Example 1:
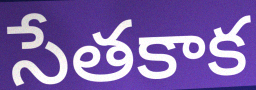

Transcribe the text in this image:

సేతకాక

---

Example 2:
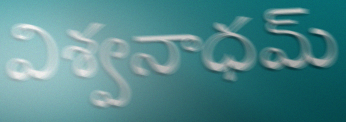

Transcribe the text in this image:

విశ్వనాధమ్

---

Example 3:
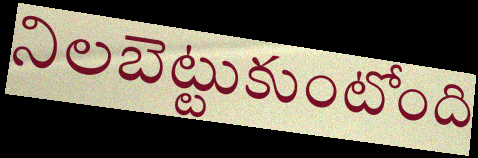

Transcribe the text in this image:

నిలబెట్టుకుంటోంది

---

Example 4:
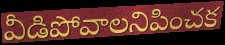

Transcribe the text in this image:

వీడిపోవాలనిపించక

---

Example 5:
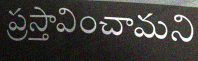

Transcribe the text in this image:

ప్రస్తావించామని